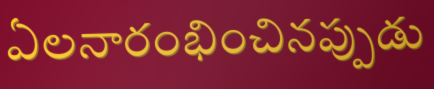
ఏలనారంభించినప్పుడు